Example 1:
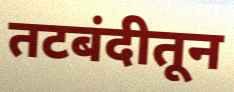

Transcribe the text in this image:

तटबंदीतून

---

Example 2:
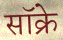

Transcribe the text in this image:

सॉक्रे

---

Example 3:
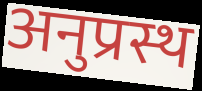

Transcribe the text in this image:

अनुप्रस्थ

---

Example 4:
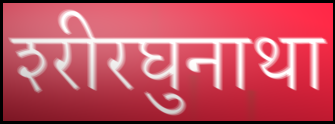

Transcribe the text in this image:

श्रीरघुनाथा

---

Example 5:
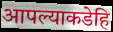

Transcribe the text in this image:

आपल्याकडेहि